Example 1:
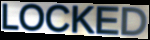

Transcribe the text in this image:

LOCKED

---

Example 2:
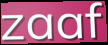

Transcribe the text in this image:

zaaf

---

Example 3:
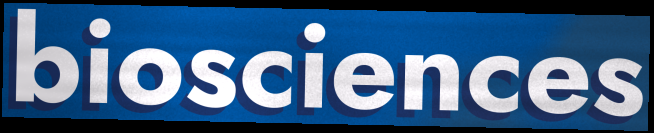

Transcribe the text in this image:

biosciences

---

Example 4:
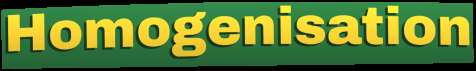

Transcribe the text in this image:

Homogenisation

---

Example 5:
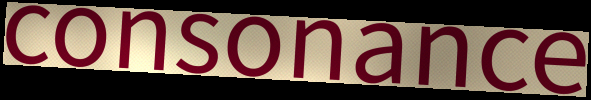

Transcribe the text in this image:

consonance